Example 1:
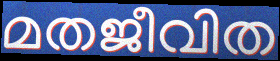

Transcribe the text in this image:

മതജീവിത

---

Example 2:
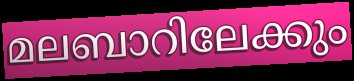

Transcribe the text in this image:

മലബാറിലേക്കും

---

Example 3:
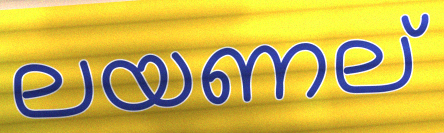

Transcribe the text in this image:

ലയണല്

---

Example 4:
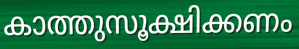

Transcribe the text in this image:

കാത്തുസൂക്ഷിക്കണം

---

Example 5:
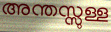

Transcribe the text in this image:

അന്തസ്സുള്ള